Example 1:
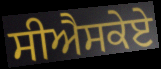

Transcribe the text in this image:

ਸੀਐਸਕੇਏ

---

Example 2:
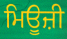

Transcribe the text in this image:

ਮਿਊਜ਼ੀ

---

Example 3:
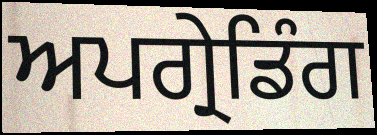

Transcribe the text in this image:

ਅਪਗ੍ਰੇਡਿੰਗ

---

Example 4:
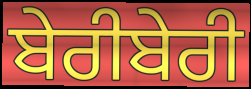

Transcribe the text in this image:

ਬੇਰੀਬੇਰੀ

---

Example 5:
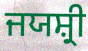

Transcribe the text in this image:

ਜਯਸ਼੍ਰੀ